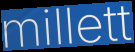
millett